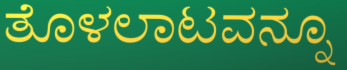
ತೊಳಲಾಟವನ್ನೂ